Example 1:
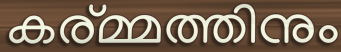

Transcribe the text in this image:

കര്മ്മത്തിനും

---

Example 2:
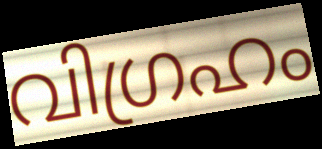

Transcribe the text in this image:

വിഗ്രഹം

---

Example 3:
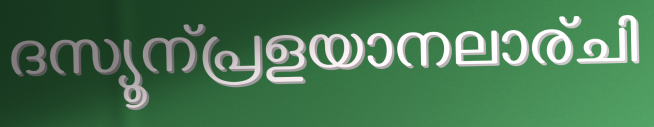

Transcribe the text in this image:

ദസ്യൂന്പ്രളയാനലാര്ചി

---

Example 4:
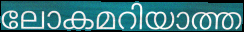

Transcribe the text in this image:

ലോകമറിയാത്ത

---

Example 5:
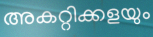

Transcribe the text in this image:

അകറ്റിക്കളയും